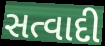
સત્વાદી